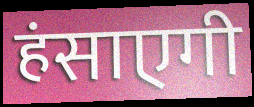
हंसाएगी